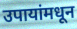
उपायांमधून